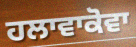
ਹਲਾਵਾਕੋਵਾ